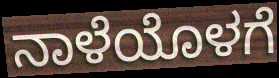
ನಾಳೆಯೊಳಗೆ